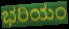
ಭರಿಯಂ